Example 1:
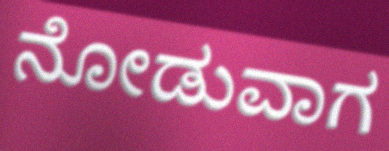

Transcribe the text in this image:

ನೋಡುವಾಗ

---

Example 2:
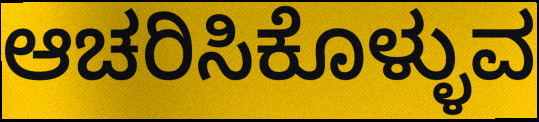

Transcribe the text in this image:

ಆಚರಿಸಿಕೊಳ್ಳುವ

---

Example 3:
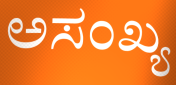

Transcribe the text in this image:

ಅಸಂಖ್ಯ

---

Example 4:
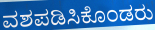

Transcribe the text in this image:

ವಶಪಡಿಸಿಕೊಂಡರು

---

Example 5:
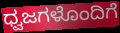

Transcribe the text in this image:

ಧ್ವಜಗಳೊಂದಿಗೆ